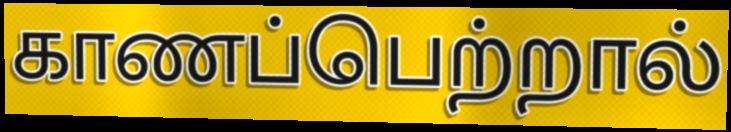
காணப்பெற்றால்